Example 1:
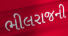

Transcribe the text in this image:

ભીલરાજની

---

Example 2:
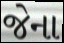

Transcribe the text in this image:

જેના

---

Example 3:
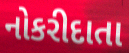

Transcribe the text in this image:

નોકરીદાતા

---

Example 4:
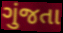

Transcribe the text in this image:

ગુંજતા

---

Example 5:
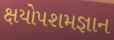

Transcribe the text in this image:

ક્ષયોપશમજ્ઞાન